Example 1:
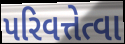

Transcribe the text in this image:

પરિવત્તેત્વા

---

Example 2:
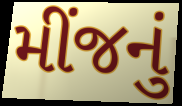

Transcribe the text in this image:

મીંજનું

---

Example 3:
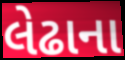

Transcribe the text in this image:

લેઢાના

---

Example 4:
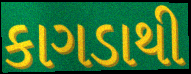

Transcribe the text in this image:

કાગડાથી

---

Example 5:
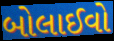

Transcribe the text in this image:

બોલાઈવો